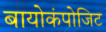
बायोकंपोजिट